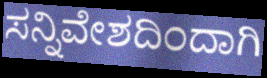
ಸನ್ನಿವೇಶದಿಂದಾಗಿ